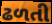
ઢળતી